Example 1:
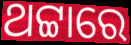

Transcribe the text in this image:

ଥଟ୍ଟାରେ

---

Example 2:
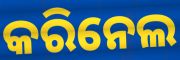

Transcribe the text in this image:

କରିନେଲ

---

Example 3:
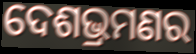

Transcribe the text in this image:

ଦେଶଭ୍ରମଣର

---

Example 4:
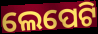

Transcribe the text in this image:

ଲେପେଟି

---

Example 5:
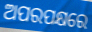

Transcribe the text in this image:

ଅପରପକ୍ଷରେ